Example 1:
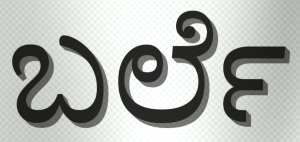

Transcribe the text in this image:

ಬರ್ಲೆ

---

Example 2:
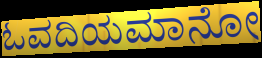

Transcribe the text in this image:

ಓವದಿಯಮಾನೋ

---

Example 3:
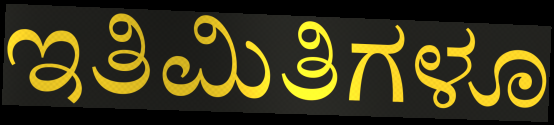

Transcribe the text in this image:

ಇತಿಮಿತಿಗಳೂ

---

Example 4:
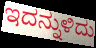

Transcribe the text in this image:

ಇದನ್ನುಳಿದು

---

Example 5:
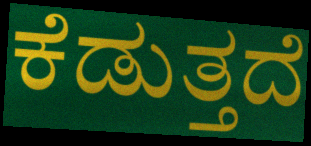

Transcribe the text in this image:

ಕೆಡುತ್ತದೆ